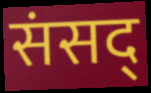
संसद्